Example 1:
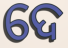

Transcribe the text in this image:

ଦେ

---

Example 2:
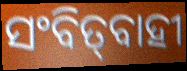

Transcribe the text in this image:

ସଂବିତ୍‌ବାହୀ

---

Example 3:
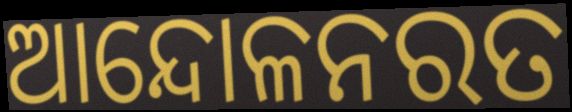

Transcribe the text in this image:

ଆନ୍ଦୋଳନରତ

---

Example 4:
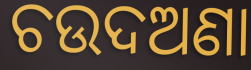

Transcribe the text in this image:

ଚଉଦଅଣା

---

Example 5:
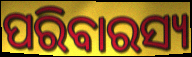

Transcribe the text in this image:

ପରିବାରସ୍ୟ